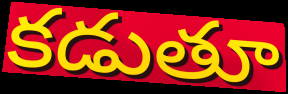
కడుతూ